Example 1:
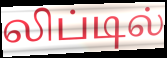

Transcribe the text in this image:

லிப்டில்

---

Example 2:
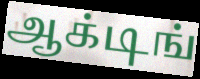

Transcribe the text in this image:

ஆக்டிங்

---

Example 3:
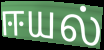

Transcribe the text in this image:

ஈயல்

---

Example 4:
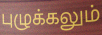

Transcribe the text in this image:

புழுக்கலும்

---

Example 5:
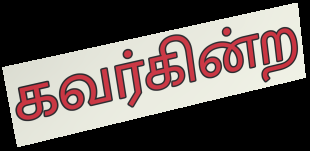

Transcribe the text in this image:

கவர்கின்ற